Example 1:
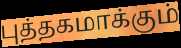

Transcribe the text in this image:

புத்தகமாக்கும்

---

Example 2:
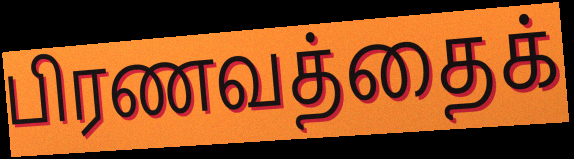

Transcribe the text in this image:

பிரணவத்தைக்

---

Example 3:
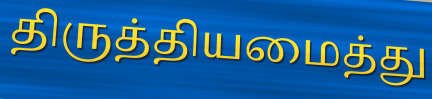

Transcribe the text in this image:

திருத்தியமைத்து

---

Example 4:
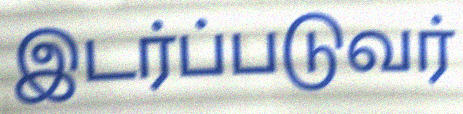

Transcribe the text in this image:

இடர்ப்படுவர்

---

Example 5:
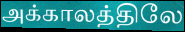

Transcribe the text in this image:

அக்காலத்திலே